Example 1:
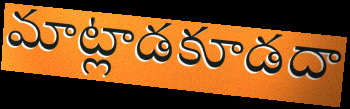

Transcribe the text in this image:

మాట్లాడకూడదా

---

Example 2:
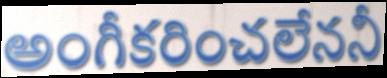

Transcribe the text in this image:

అంగీకరించలేననీ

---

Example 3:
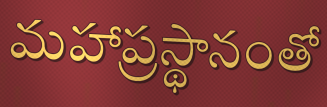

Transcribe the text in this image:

మహాప్రస్థానంతో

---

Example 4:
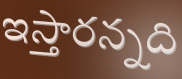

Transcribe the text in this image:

ఇస్తారన్నది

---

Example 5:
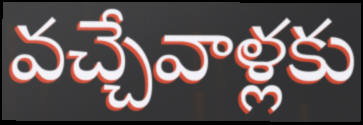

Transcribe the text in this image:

వచ్చేవాళ్లకు